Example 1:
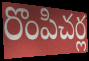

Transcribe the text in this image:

రొంపిచర్ల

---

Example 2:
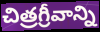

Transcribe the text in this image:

చిత్రగ్రీవాన్ని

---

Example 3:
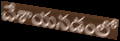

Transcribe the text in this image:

చేశాయనడంలో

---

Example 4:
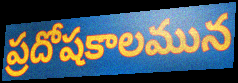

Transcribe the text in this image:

ప్రదోషకాలమున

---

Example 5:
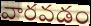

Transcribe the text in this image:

వారవడం